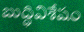
బుద్ధివిశేషం